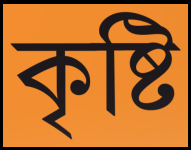
কৃষ্টি